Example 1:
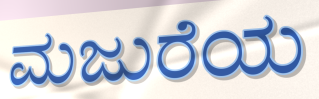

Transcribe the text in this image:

ಮಜುರೆಯ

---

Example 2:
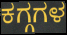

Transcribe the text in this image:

ಕಗ್ಗಗಳ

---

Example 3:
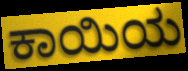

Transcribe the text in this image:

ಕಾಯಿಯ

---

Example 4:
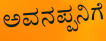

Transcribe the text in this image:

ಅವನಪ್ಪನಿಗೆ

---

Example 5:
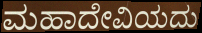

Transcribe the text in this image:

ಮಹಾದೇವಿಯದು